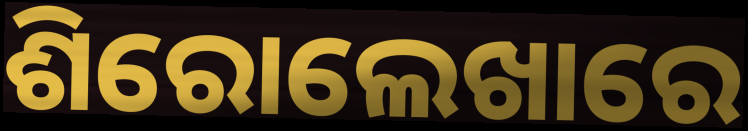
ଶିରୋଲେଖାରେ